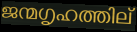
ജന്മഗൃഹത്തില്